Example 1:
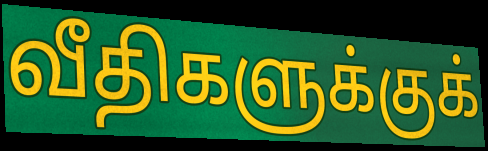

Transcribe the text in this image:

வீதிகளுக்குக்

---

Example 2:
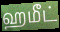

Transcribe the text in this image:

ஹமீட்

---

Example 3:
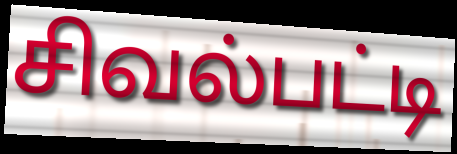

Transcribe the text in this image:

சிவல்பட்டி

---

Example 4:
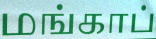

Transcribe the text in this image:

மங்காப்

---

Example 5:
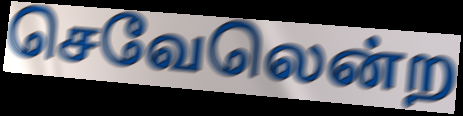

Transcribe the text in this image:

செவேலென்ற